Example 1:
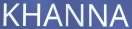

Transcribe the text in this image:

KHANNA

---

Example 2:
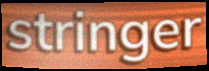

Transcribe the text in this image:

stringer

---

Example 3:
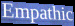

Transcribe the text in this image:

Empathic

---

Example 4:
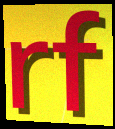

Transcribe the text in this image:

rf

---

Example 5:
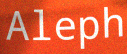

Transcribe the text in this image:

Aleph